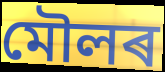
মৌলৰ